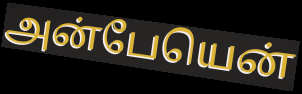
அன்பேயென்